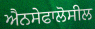
ਐਨਸੇਫਾਲੋਸੀਲ